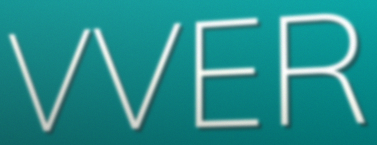
VVER